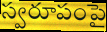
స్వరూపంపై